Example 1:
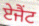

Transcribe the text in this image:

ਏਜੈਂਟ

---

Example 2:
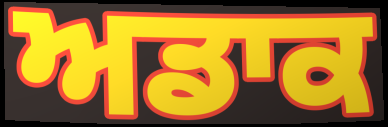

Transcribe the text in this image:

ਅਡਾਕ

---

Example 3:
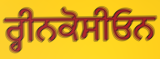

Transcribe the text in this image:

ਰ੍ਹੀਨਕੋਸੀਓਨ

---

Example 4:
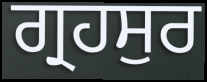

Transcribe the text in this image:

ਗ੍ਰਹਸੁਰ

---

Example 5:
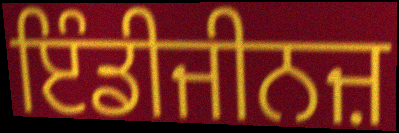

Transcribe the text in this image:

ਇੰਡੀਜੀਨਜ਼